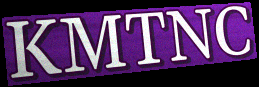
KMTNC